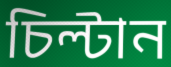
চিল্টান